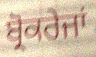
ਬ੍ਰੋਕਰੇਜਾਂ